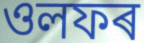
ওলফৰ